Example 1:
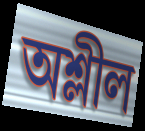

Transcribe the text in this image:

অশ্লীল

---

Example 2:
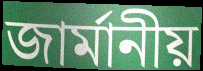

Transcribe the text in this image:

জার্মানীয়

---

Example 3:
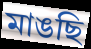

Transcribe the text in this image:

মাঙছি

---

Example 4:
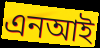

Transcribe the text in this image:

এনআই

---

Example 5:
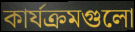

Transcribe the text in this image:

কার্যক্রমগুলো